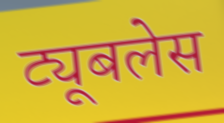
ट्यूबलेस